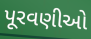
પૂરવણીઓ